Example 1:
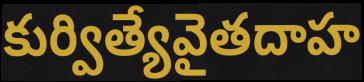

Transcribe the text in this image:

కుర్విత్యేవైతదాహ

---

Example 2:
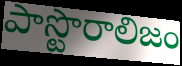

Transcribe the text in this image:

పాస్టొరాలిజం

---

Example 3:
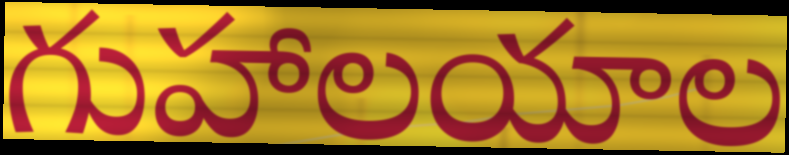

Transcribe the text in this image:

గుహాలయాల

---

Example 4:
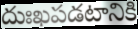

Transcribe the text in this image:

దుఃఖపడటానికి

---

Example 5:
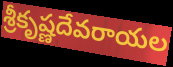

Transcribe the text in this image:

శ్రీకృష్ణదేవరాయల